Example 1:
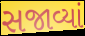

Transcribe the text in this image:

સજાવ્યાં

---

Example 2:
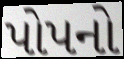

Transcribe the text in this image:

પોપનો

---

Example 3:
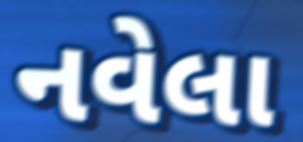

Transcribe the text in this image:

નવેલા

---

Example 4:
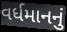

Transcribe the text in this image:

વર્ધમાનનું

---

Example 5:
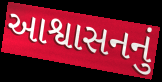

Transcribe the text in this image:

આશ્વાસનનું